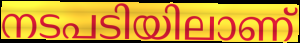
നടപടിയിലാണ്